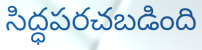
సిద్ధపరచబడింది